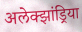
अलेक्झांड्रिया